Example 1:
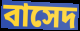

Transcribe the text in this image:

বাসেদ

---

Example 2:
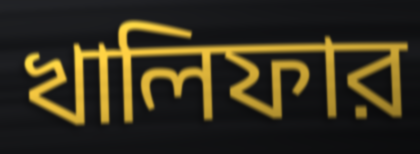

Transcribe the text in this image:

খালিফার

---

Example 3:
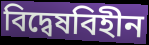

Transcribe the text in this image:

বিদ্বেষবিহীন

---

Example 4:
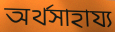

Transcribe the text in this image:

অর্থসাহায্য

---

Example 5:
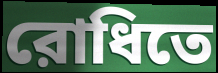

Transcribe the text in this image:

রোধিতে